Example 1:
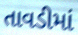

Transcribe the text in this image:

તાવડીમાં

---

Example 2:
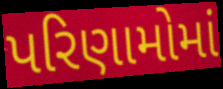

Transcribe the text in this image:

પરિણામોમાં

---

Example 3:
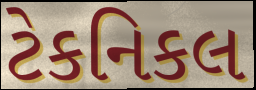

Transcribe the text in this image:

ટેકનિકલ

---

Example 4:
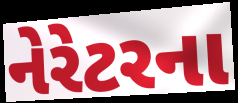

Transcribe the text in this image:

નેરેટરના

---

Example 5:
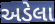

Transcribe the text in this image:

અડેલા